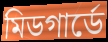
মিডগার্ডে